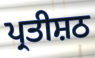
ਪ੍ਰਤੀਸ਼ਠ